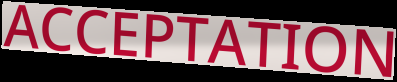
ACCEPTATION